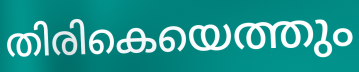
തിരികെയെത്തും